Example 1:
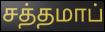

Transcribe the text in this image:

சத்தமாப்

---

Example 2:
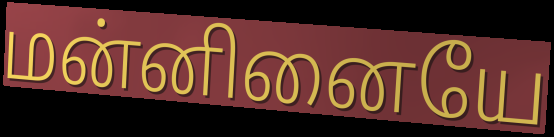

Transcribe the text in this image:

மன்னினையே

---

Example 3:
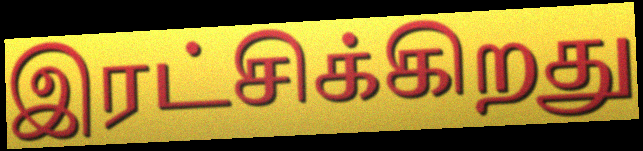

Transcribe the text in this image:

இரட்சிக்கிறது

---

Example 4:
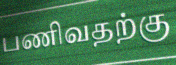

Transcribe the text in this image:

பணிவதற்கு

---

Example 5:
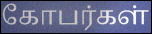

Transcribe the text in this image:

கோபர்கள்